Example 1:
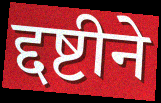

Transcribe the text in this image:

द्दष्टीने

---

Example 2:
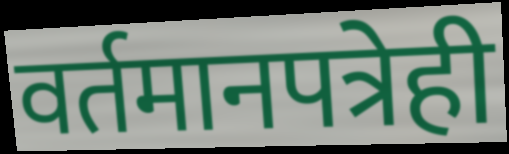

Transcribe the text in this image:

वर्तमानपत्रेही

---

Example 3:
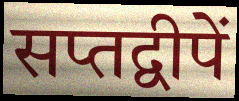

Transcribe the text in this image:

सप्तद्वीपें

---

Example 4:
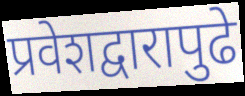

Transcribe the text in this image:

प्रवेशद्वारापुढे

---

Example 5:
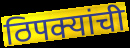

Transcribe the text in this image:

ठिपक्यांची